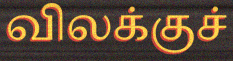
விலக்குச்